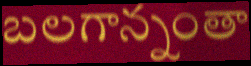
బలగాన్నంతా